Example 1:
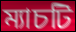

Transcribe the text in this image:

ম্যাচটি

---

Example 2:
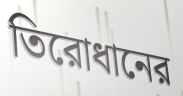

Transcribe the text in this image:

তিরোধানের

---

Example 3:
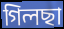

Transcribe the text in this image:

গিলছা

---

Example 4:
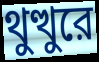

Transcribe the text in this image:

থুত্থুরে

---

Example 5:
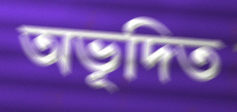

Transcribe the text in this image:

অভূদিত